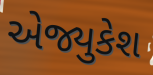
એજ્યુકેશ